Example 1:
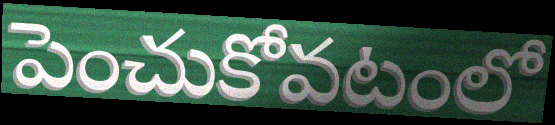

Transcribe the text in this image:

పెంచుకోవటంలో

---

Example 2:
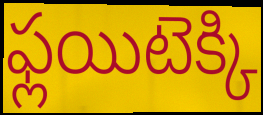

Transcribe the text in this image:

ఫ్లయిటెక్కి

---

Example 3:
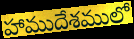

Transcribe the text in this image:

హాముదేశములో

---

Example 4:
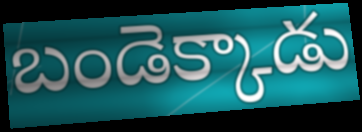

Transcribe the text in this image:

బండెక్కాడు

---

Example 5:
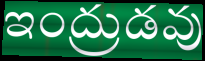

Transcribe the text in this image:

ఇంద్రుడవు